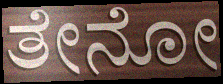
ತೇನೋ